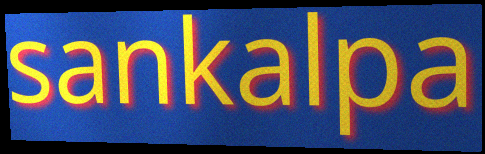
sankalpa